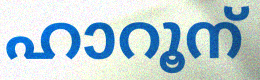
ഹാറൂന്